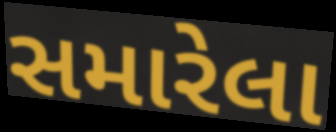
સમારેલા